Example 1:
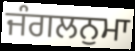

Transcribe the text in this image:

ਜੰਗਲਨੁਮਾ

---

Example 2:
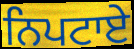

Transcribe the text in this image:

ਨਿਪਟਾਏ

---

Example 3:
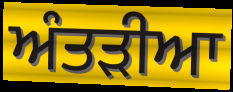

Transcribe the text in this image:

ਅੰਤੜੀਆ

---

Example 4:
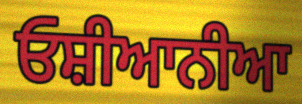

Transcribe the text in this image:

ਓਸ਼ੀਆਨੀਆ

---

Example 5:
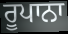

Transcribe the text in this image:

ਰੂਪਾਨਾ